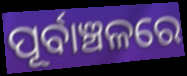
ପୂର୍ବାଞ୍ଚଳରେ